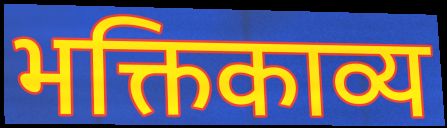
भक्तिकाव्य